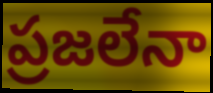
ప్రజలేనా